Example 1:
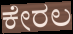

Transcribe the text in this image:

ಕೇರಲ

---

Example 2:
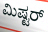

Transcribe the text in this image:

ಮಿಷ್ಟರ್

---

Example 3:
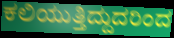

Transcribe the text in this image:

ಕಲಿಯುತ್ತಿದ್ದುದರಿಂದ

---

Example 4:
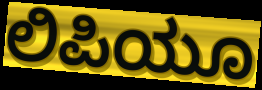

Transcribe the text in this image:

ಲಿಪಿಯೂ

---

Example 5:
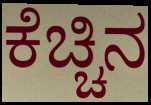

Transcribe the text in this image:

ಕೆಚ್ಚಿನ